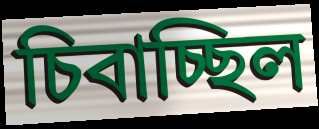
চিবাচ্ছিল